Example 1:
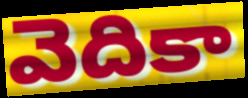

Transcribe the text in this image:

వెదికా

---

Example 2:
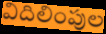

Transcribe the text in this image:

విదిలింపుల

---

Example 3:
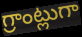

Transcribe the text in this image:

గ్రాంట్లుగా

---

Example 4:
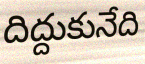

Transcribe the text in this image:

దిద్దుకునేది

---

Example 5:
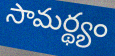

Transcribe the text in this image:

సామర్థ్యం